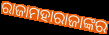
ରାଜାମହାରାଜାଙ୍କର